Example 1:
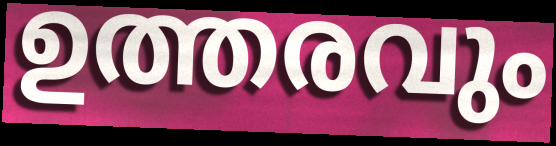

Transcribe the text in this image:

ഉത്തരവും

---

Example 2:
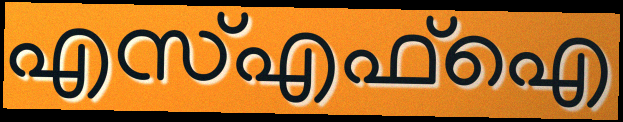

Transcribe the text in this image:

എസ്എഫ്ഐ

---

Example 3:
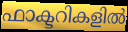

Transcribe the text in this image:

ഫാക്ടറികളിൽ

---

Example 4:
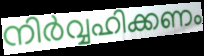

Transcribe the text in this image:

നിർവ്വഹിക്കണം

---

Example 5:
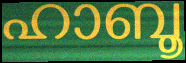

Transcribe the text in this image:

ഹാബൂ